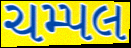
ચમ્પલ